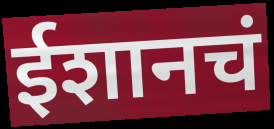
ईशानचं